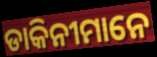
ଡାକିନୀମାନେ